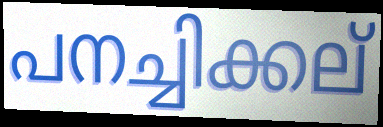
പനച്ചിക്കല്